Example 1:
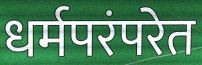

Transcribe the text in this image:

धर्मपरंपरेत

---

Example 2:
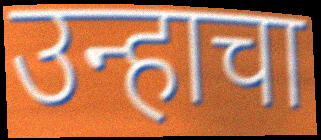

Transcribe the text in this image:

उन्हाचा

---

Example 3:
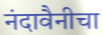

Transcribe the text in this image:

नंदावैनीचा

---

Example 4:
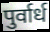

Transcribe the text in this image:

पुर्वार्ध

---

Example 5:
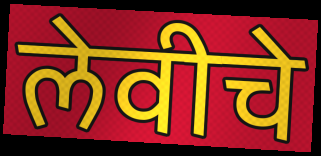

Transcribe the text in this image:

लेवीचे